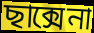
ছাক্সেনা